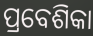
ପ୍ରବେଶିକା